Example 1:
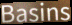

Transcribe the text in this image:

Basins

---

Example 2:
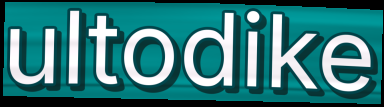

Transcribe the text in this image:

ultodike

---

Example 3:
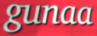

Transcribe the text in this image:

gunaa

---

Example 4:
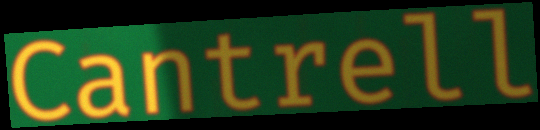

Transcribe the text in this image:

Cantrell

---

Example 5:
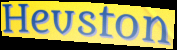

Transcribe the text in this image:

Heuston